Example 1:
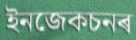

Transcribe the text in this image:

ইনজেকচনৰ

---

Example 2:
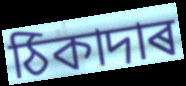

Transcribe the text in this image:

ঠিকাদাৰ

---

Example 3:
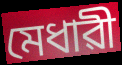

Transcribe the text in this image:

মেধাৱী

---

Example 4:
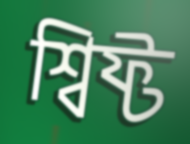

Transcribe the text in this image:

শ্বিফ্ট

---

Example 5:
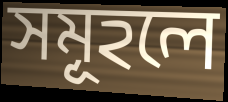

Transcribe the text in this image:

সমূহলে